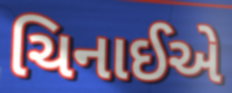
ચિનાઈએ